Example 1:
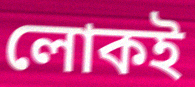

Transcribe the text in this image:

লোকই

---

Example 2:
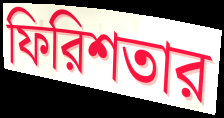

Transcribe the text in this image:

ফিরিশতার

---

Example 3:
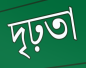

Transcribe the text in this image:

দৃঢ়তা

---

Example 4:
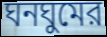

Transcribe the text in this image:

ঘনঘুমের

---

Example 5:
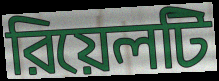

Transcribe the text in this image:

রিয়েলটি